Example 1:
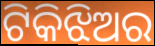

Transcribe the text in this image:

ଟିକିଝିଅର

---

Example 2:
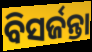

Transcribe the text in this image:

ବିସର୍ଜନ୍ତା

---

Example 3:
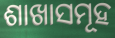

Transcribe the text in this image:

ଶାଖାସମୂହ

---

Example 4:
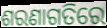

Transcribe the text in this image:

ଶରଣାଗତିରେ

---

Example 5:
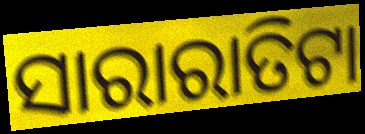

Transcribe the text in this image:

ସାରାରାତିଟା